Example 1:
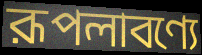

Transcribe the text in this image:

রূপলাবণ্যে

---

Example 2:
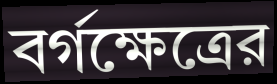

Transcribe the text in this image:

বর্গক্ষেত্রের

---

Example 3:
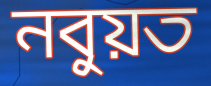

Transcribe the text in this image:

নবুয়ত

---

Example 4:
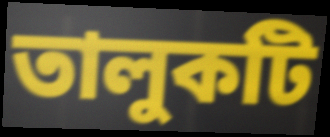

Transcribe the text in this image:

তালুকটি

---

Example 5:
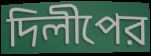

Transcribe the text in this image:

দিলীপের